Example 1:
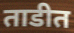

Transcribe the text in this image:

ताडीत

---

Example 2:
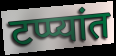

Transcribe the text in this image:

टप्प्यांत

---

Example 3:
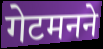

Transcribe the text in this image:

गेटमनने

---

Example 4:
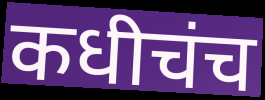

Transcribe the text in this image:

कधीचंच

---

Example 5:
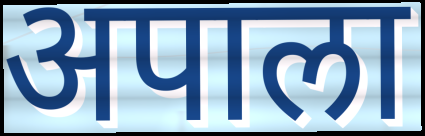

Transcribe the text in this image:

अपाला